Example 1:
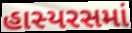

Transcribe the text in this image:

હાસ્યરસમાં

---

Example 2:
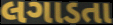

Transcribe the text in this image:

લગાડતા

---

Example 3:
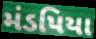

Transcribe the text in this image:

મંડપિયા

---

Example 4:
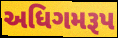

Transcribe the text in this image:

અધિગમરૂપ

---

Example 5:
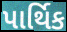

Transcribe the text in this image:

પાર્થિક